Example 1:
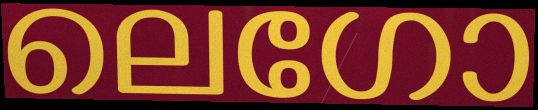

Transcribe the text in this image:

ലെഗോ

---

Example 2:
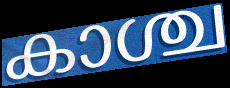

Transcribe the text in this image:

കാശ്ച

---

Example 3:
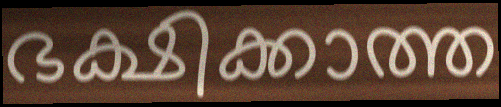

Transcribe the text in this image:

ഭക്ഷിക്കാത്ത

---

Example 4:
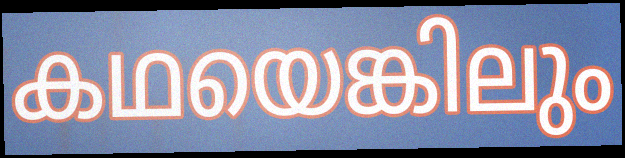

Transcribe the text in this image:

കഥയെങ്കിലും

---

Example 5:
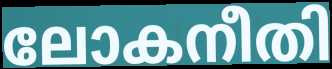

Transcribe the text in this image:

ലോകനീതി